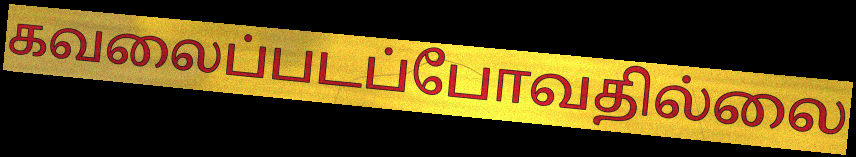
கவலைப்படப்போவதில்லை